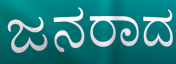
ಜನರಾದ